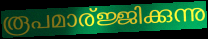
രൂപമാര്ജ്ജിക്കുന്നു